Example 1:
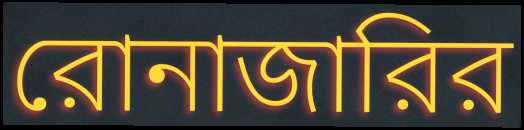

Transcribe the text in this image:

রোনাজারির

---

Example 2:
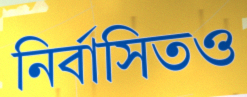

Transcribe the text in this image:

নির্বাসিতও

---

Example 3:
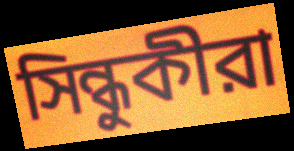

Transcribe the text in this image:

সিন্ধুকীরা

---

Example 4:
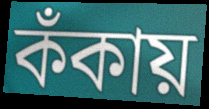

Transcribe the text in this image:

কঁকায়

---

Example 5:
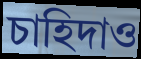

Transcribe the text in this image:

চাহিদাও